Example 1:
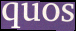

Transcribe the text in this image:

quos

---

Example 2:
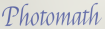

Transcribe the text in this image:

Photomath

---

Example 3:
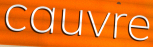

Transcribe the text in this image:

cauvre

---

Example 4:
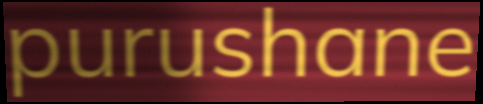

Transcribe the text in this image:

purushane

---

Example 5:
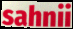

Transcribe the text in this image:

sahnii